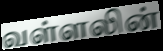
வள்ளலின்